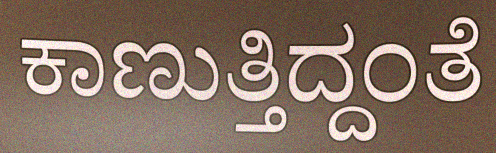
ಕಾಣುತ್ತಿದ್ದಂತೆ